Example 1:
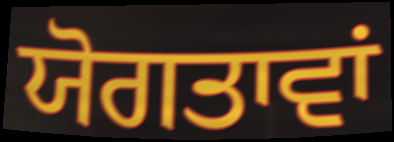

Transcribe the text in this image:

ਯੋਗਤਾਵਾਂ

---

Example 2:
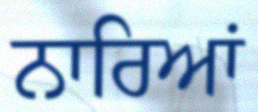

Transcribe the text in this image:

ਨਾਰਿਆਂ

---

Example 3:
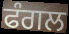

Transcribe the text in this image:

ਫੰਗਲ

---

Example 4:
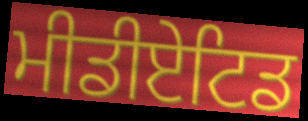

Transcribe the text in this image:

ਮੀਡੀਏਟਿਡ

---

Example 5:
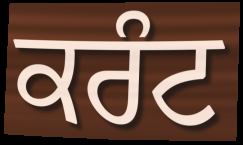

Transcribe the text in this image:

ਕਰੰਟ